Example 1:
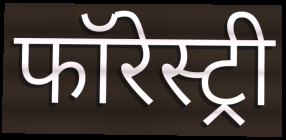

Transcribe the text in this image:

फॉरेस्ट्री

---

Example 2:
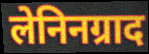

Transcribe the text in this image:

लेनिनग्राद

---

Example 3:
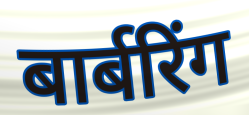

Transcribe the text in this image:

बार्बरिंग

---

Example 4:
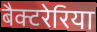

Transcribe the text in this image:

बैक्टरेरिया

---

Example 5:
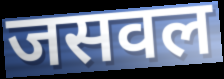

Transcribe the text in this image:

जसवल